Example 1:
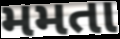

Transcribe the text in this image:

મમતા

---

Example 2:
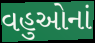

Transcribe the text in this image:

વહુઓનાં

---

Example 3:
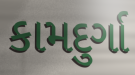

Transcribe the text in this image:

કામદુર્ગા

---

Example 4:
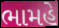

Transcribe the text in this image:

ભામહે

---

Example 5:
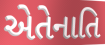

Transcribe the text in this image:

એતેનાતિ